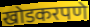
खोडकरपणे